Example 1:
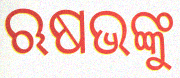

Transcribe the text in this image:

ଋଷଭଙ୍କୁ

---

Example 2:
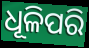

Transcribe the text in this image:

ଧୂଳିପରି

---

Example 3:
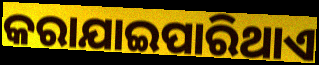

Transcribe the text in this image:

କରାଯାଇପାରିଥାଏ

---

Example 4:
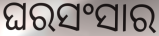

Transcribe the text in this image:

ଘରସଂସାର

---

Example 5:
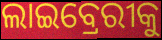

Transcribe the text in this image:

ଲାଇବ୍ରେରୀକୁ